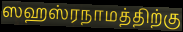
ஸஹஸ்ரநாமத்திற்கு